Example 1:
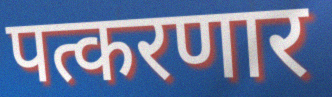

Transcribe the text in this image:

पत्करणार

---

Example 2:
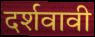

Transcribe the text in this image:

दर्शवावी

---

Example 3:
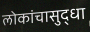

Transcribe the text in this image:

लोकांचासुद्धा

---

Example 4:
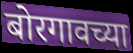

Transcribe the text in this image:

बोरगावच्या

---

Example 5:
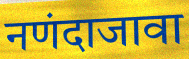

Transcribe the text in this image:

नणंदाजावा